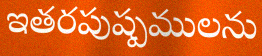
ఇతరపుష్పములను